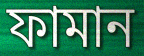
ফামান